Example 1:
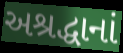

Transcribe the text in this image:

અશ્રદ્ધાનાં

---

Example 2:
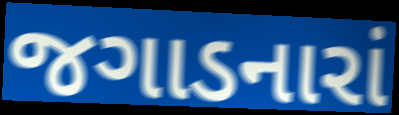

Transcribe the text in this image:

જગાડનારાં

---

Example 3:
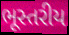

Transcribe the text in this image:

ભૂસ્તરીય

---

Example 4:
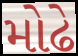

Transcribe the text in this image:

મોઢે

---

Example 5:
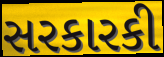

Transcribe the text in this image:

સરકારકી